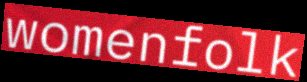
womenfolk